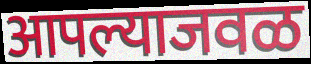
आपल्याजवळ